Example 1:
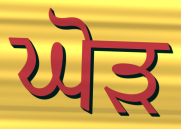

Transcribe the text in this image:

ਘੋੜ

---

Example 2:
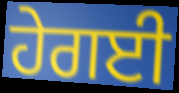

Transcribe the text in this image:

ਹੇਗਈ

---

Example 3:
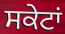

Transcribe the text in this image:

ਸਕੇਟਾਂ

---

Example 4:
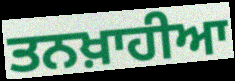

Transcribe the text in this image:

ਤਨਖ਼ਾਹੀਆ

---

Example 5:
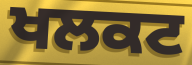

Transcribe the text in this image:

ਖਲਕਟ